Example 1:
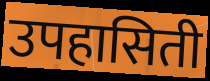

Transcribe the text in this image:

उपहासिती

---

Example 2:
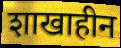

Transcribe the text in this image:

शाखाहीन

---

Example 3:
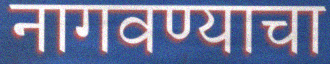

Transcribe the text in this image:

नागवण्याचा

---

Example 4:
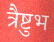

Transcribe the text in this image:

त्रैष्टुभ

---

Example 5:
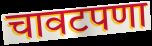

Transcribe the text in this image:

चावटपणा